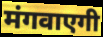
मंगवाएगी